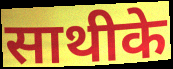
साथीके